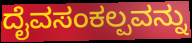
ದೈವಸಂಕಲ್ಪವನ್ನು